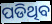
ପଡିଥିବ